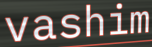
vashim